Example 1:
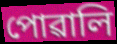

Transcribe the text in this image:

পোৱালি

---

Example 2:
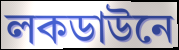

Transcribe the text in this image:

লকডাউনে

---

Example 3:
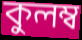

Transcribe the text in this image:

কুলম্ব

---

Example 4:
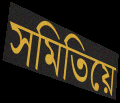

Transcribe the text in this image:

সমিতিয়ে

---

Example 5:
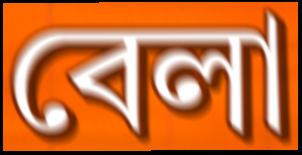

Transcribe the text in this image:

বেলা